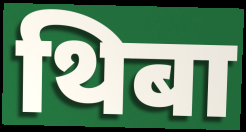
थिबा